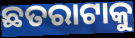
ଛତରାଟାକୁ